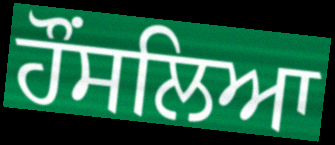
ਹੌਂਸਲਿਆ